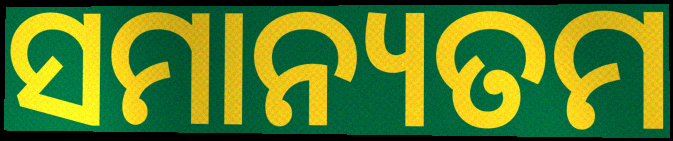
ସମାନ୍ୟତମ